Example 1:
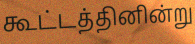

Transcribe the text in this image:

கூட்டத்தினின்று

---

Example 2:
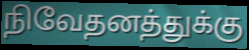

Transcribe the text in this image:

நிவேதனத்துக்கு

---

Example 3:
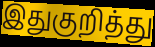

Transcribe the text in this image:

இதுகுறித்து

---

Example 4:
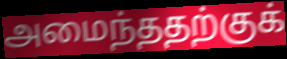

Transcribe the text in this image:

அமைந்ததற்குக்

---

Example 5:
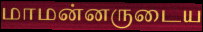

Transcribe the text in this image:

மாமன்னருடைய